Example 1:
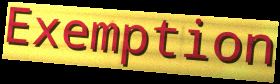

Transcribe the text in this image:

Exemption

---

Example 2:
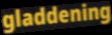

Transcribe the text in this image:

gladdening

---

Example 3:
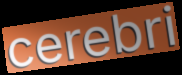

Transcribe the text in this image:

cerebri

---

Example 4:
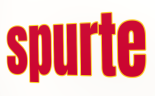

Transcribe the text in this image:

spurte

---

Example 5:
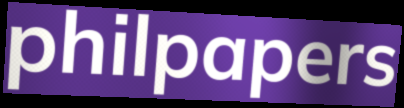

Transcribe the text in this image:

philpapers